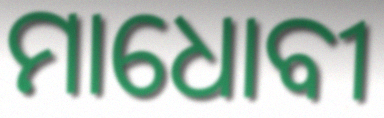
ମାଧୋବୀ